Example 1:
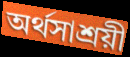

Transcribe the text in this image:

অর্থসাশ্রয়ী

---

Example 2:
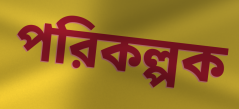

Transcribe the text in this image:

পরিকল্পক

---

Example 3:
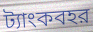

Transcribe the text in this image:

ট্যাংকবহর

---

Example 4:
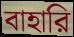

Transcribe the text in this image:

বাহারি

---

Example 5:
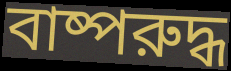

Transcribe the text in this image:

বাষ্পরুদ্ধ